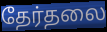
தேர்தலை